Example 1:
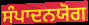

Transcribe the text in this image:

ਸੰਪਾਦਨਯੋਗ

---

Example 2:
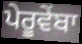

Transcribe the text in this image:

ਪੇਰੂਵੇਂਬਾ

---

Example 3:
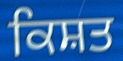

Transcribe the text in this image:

ਕਿਸ਼ਤ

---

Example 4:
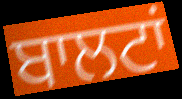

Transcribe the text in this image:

ਬਾਲਟਾਂ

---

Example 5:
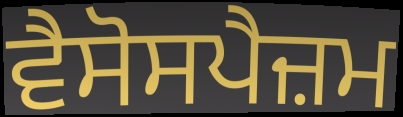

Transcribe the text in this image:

ਵੈਸੋਸਪੈਜ਼ਮ